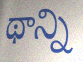
థాన్ని